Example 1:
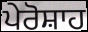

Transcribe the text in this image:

ਪੇਰੋਸ਼ਾਹ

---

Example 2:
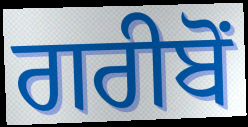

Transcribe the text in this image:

ਗਰੀਬੋਂ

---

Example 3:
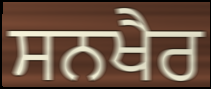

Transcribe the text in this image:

ਸਨਖੈਰ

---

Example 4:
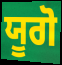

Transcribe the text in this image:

ਯੂਗੋ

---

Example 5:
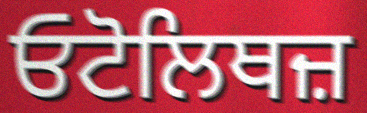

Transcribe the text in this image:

ਓਟੋਲਿਥਜ਼